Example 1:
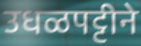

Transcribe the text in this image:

उधळपट्टीने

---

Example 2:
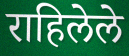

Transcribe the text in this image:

राहिलेले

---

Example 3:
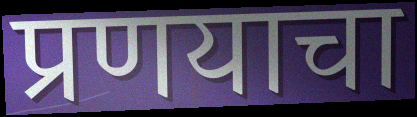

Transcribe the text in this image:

प्रणयाचा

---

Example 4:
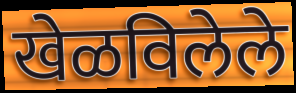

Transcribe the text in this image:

खेळविलेले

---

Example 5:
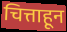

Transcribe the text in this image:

चित्ताहून